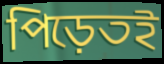
পিড়েতই